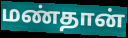
மண்தான்